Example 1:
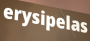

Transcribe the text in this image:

erysipelas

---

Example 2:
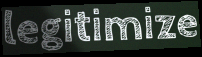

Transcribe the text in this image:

legitimize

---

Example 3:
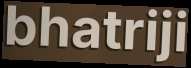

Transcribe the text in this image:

bhatriji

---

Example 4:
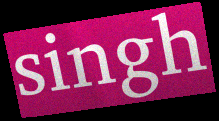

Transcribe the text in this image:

singh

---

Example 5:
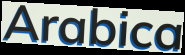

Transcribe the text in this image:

Arabica